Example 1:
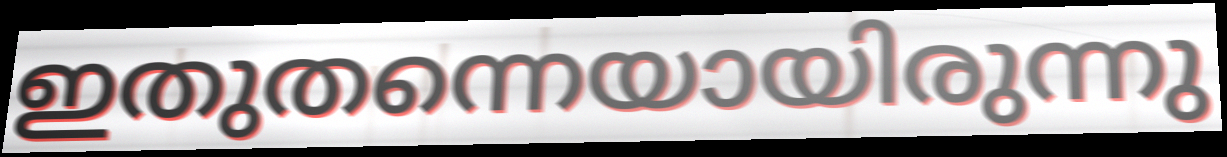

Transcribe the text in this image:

ഇതുതന്നെയായിരുന്നു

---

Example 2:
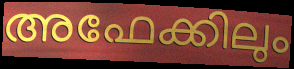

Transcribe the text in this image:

അഫേക്കിലും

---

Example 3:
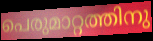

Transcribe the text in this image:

പെരുമാറ്റത്തിനു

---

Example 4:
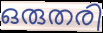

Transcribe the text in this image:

ഒരുതരി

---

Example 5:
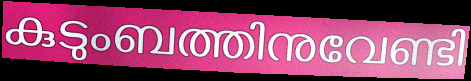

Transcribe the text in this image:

കുടുംബത്തിനുവേണ്ടി